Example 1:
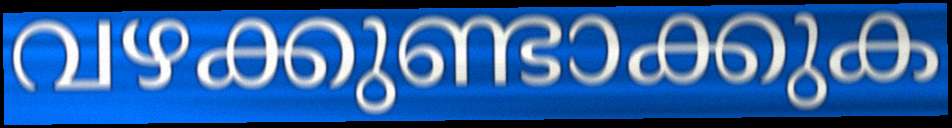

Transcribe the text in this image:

വഴക്കുണ്ടാക്കുക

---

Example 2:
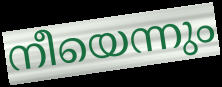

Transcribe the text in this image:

നീയെന്നും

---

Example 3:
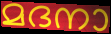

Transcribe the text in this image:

മദനാ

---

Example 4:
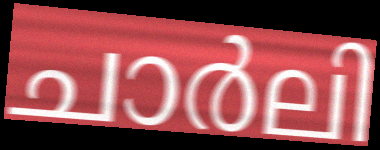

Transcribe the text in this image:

ചാർലി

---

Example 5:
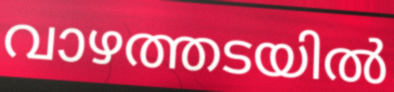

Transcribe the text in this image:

വാഴത്തടയിൽ